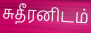
சுதீரனிடம்